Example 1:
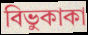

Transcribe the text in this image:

বিভুকাকা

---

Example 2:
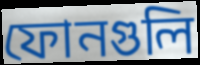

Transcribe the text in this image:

ফোনগুলি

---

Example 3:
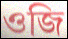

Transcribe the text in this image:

ওজি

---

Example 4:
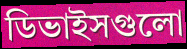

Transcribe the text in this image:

ডিভাইসগুলো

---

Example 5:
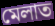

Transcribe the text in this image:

মেলাত